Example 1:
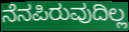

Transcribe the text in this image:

ನೆನಪಿರುವುದಿಲ್ಲ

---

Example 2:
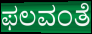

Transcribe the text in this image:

ಫಲವಂತೆ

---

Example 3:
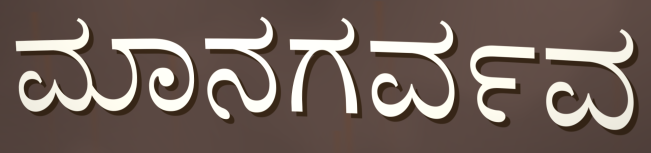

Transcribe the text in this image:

ಮಾನಗರ್ವವ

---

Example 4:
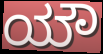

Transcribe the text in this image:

ಯೌ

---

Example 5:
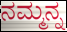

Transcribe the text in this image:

ನಮ್ಮನ್ನ